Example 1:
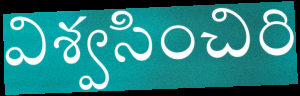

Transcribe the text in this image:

విశ్వసించిరి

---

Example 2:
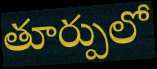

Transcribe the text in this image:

తూర్పులో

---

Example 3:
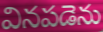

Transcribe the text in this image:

వినపడెను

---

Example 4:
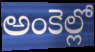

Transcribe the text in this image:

అంకెల్లో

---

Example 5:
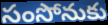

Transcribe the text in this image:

సంసోనుకు